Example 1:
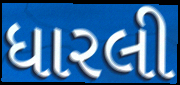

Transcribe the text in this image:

ધારલી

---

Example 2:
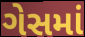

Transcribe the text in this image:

ગેસમાં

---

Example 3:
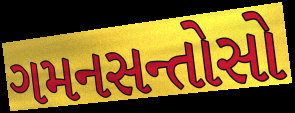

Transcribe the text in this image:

ગમનસન્તોસો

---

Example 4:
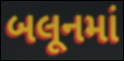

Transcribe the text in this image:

બલૂનમાં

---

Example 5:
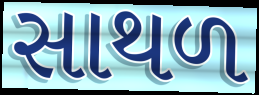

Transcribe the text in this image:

સાથળ